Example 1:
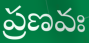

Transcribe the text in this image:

ప్రణవః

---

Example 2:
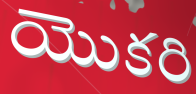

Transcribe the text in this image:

యొకరి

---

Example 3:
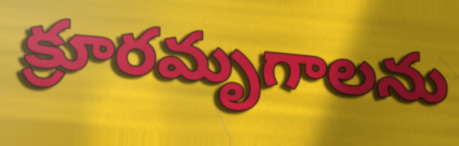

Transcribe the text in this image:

క్రూరమృగాలను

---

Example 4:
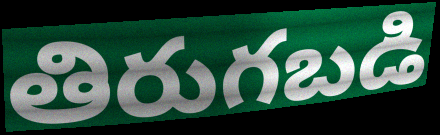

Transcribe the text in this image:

తిరుగబడి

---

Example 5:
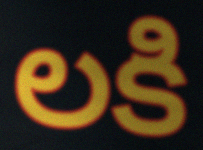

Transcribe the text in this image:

లకి